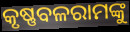
କୃଷ୍ଣବଳରାମଙ୍କୁ